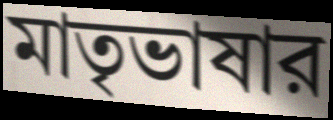
মাতৃভাষার